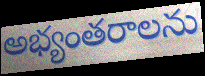
అభ్యంతరాలను